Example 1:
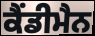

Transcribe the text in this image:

ਕੈਂਡੀਮੈਨ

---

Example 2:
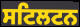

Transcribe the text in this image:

ਸਟਿਲਟਨ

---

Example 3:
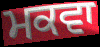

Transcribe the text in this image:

ਮਕਵਾ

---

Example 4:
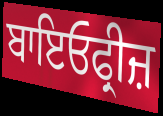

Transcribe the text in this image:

ਬਾਇਓਫ੍ਰੀਜ਼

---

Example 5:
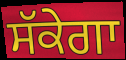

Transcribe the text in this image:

ਸੱਕੇਗਾ